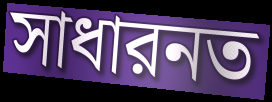
সাধারনত